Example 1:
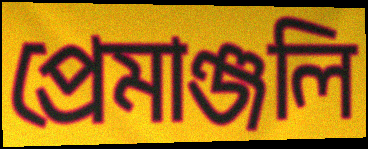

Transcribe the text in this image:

প্রেমাঞ্জলি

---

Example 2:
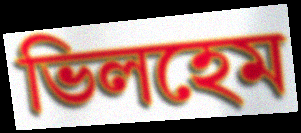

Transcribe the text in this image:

ভিলহেম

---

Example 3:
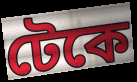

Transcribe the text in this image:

টেকে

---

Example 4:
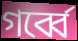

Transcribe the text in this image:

গর্ব্বে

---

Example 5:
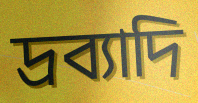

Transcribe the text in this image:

দ্রব্যাদি